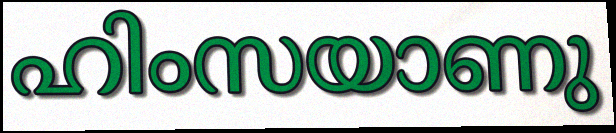
ഹിംസയാണു